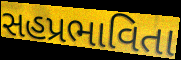
સહપ્રભાવિતા